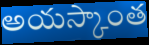
అయస్కాంత